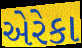
એરેકા